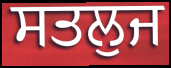
ਸਤਲੁਜ